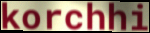
korchhi